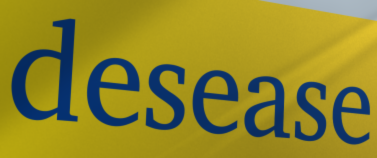
desease